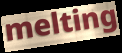
melting